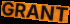
GRANT